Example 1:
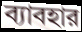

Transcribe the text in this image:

ব্যাবহার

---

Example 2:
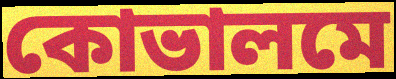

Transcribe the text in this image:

কোভালমে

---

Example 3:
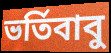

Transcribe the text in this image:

ভর্তিবাবু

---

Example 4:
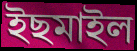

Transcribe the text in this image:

ইছমাইল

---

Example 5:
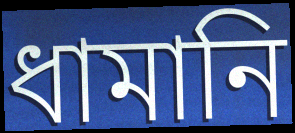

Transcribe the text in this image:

ধামানি